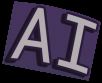
AI